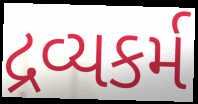
દ્રવ્યકર્મ